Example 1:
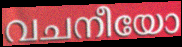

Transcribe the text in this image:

വചനീയോ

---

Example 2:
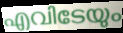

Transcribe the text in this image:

എവിടേയും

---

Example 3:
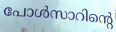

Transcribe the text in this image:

പോൾസാറിന്റെ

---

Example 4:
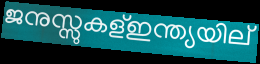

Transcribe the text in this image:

ജനുസ്സുകള്ഇന്ത്യയില്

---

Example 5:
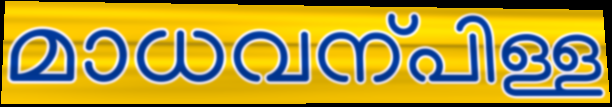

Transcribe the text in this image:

മാധവന്പിള്ള